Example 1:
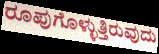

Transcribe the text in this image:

ರೂಪುಗೊಳ್ಳುತ್ತಿರುವುದು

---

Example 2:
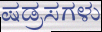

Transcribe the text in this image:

ಷಡ್ರಸಗಳು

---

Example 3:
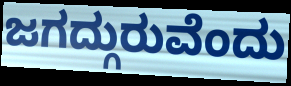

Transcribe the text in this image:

ಜಗದ್ಗುರುವೆಂದು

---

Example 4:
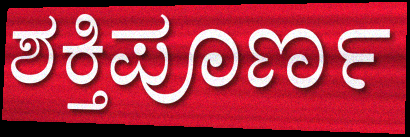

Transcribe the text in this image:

ಶಕ್ತಿಪೂರ್ಣ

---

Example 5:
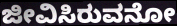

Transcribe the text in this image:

ಜೀವಿಸಿರುವನೋ